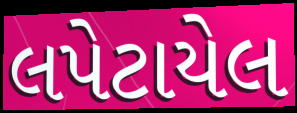
લપેટાયેલ